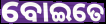
ବୋଇତେ